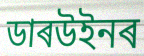
ডাৰউইনৰ